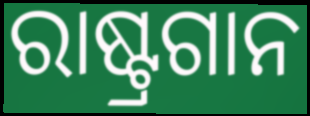
ରାଷ୍ଟ୍ରଗାନ